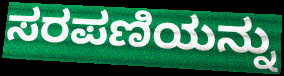
ಸರಪಣಿಯನ್ನು